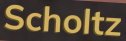
Scholtz